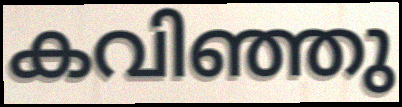
കവിഞ്ഞു